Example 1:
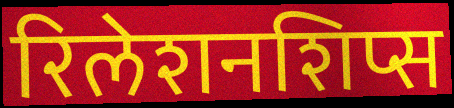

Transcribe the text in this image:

रिलेशनशिप्स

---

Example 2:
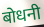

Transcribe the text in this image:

बोधनी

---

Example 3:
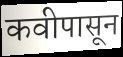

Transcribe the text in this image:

कवीपासून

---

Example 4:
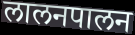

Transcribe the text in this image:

लालनपालन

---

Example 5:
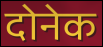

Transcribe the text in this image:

दोनेक